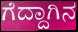
ಗೆದ್ದಾಗಿನ